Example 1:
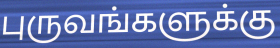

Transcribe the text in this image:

புருவங்களுக்கு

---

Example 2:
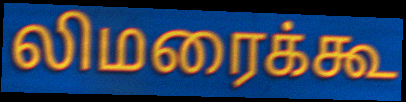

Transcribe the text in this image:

லிமரைக்கூ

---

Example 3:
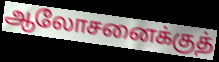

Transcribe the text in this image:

ஆலோசனைக்குத்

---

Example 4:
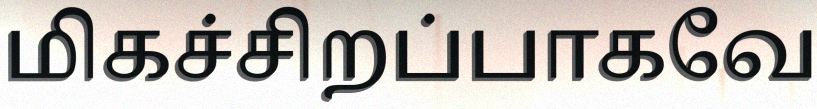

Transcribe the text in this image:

மிகச்சிறப்பாகவே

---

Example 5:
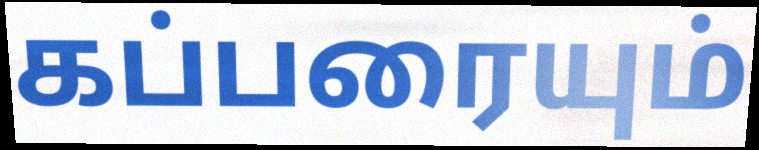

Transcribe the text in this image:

கப்பரையும்